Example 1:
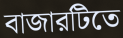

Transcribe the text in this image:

বাজারটিতে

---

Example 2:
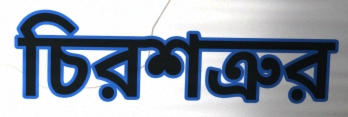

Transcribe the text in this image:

চিরশত্রুর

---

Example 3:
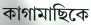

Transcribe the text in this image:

কাগামাছিকে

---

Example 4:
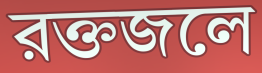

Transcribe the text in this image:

রক্তজলে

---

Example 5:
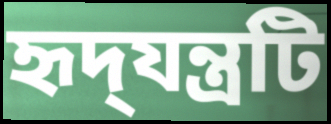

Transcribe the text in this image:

হৃদ্‌যন্ত্রটি